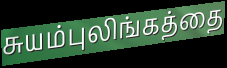
சுயம்புலிங்கத்தை